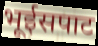
भूईसपाट